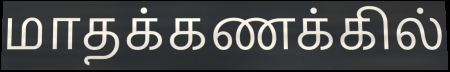
மாதக்கணக்கில்